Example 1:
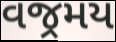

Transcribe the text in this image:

વજ્રમય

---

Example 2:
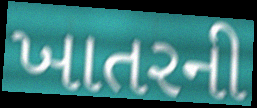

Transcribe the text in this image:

ખાતરની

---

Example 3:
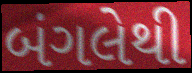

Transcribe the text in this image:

બંગલેથી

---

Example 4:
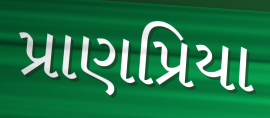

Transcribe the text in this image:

પ્રાણપ્રિયા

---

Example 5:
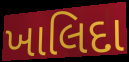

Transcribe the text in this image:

ખાલિદા